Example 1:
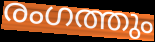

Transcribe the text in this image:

രംഗത്തും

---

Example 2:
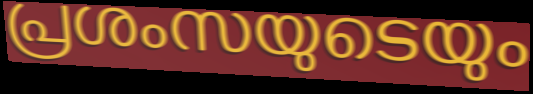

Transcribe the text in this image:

പ്രശംസയുടെയും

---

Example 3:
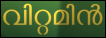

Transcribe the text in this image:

വിറ്റമിൻ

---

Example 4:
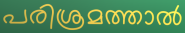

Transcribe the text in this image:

പരിശ്രമത്താൽ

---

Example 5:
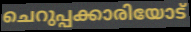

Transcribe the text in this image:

ചെറുപ്പക്കാരിയോട്